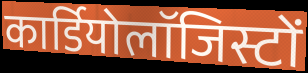
कार्डियोलॉजिस्टों